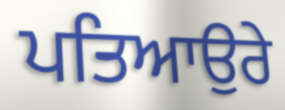
ਪਤਿਆਉਰੇ